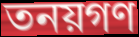
তনয়গণ